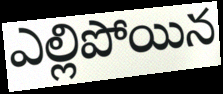
ఎల్లిపోయిన